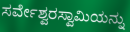
ಸರ್ವೇಶ್ವರಸ್ವಾಮಿಯನ್ನು